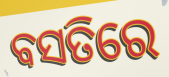
ବସତିରେ